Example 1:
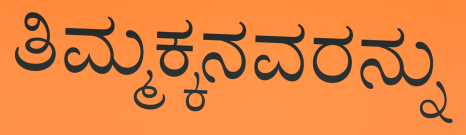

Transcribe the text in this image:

ತಿಮ್ಮಕ್ಕನವರನ್ನು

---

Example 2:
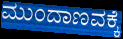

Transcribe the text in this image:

ಮುಂದಾಣವಕ್ಕೆ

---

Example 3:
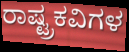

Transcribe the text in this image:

ರಾಷ್ಟ್ರಕವಿಗಳ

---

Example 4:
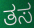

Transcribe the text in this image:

ತಸ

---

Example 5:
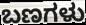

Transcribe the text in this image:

ಬಣಗಳು